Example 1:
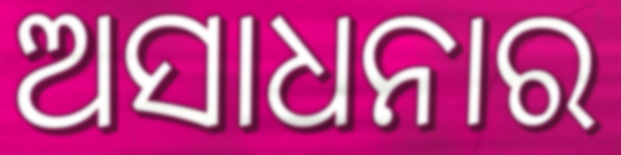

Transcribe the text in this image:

ଅସାଧନାର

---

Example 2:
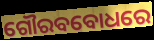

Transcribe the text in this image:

ଗୌରବବୋଧରେ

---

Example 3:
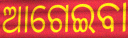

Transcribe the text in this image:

ଆଗେଇବା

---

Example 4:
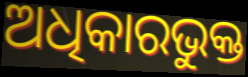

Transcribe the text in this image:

ଅଧିକାରଭୁକ୍ତ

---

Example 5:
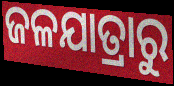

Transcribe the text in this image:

ଜଳଯାତ୍ରାରୁ